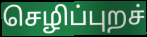
செழிப்புறச்